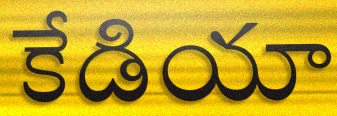
కేడియా